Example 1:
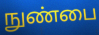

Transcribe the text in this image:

நுண்பை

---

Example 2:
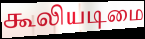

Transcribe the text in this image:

கூலியடிமை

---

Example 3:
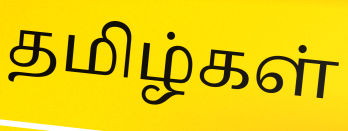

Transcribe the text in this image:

தமிழ்கள்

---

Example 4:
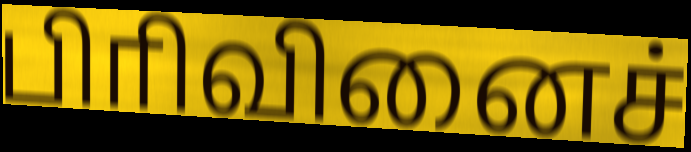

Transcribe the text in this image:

பிரிவினைச்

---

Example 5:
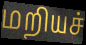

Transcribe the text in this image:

மறியச்